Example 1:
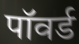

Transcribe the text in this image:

पॉवर्ड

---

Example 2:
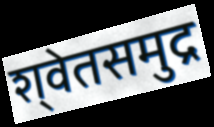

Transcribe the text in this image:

श्वेतसमुद्र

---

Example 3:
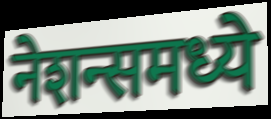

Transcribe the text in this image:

नेशन्समध्ये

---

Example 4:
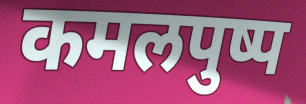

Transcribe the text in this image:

कमलपुष्प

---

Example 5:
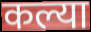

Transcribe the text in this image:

कल्या